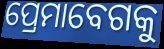
ପ୍ରେମାବେଗକୁ